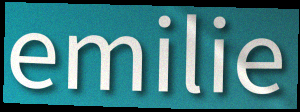
emilie